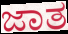
ಜಾತ